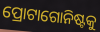
ପ୍ରୋଟାଗୋନିଷ୍ଟକୁ